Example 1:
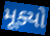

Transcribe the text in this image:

મૂક્યો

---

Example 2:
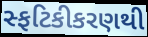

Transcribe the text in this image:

સ્ફટિકીકરણથી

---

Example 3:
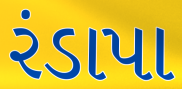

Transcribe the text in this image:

રંડાપા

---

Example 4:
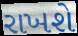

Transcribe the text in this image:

રાખશે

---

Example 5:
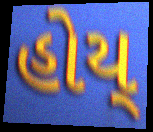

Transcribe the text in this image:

હોય્